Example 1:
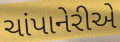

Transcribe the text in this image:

ચાંપાનેરીએ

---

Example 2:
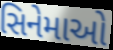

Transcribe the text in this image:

સિનેમાઓ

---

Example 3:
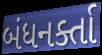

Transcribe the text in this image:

બંધનર્ક્તા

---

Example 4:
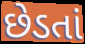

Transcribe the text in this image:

છેડતાં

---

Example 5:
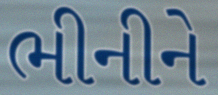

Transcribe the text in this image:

ભીનીને